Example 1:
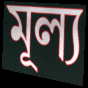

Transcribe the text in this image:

মূল্য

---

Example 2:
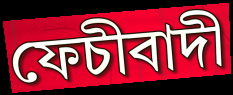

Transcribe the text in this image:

ফেচীবাদী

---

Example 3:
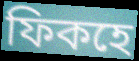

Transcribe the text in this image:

ফিকহে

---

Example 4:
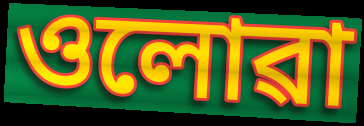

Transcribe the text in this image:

ওলোৱা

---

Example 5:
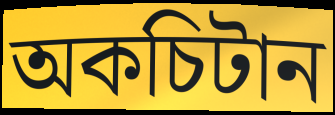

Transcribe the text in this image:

অকচিটান